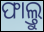
ଫାଲ୍ତୁ